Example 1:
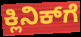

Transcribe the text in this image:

ಕ್ಲಿನಿಕ್‍ಗೆ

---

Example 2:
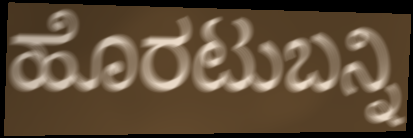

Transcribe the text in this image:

ಹೊರಟುಬನ್ನಿ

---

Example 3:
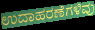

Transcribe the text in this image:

ಉದಾಹರಣೆಗಳಿವು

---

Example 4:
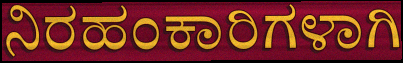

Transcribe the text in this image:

ನಿರಹಂಕಾರಿಗಳಾಗಿ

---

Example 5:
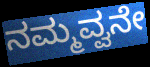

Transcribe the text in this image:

ನಮ್ಮವ್ವನೇ